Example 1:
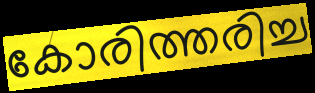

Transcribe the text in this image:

കോരിത്തരിച്ച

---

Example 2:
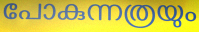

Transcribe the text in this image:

പോകുന്നത്രയും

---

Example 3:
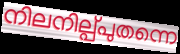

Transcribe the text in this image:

നിലനില്പ്പുതന്നെ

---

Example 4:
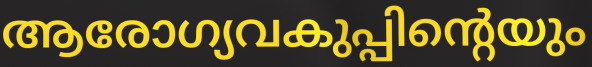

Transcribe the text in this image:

ആരോഗ്യവകുപ്പിന്റെയും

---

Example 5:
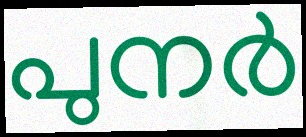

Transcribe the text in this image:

പുനർ